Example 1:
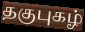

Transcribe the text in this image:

தகுபுகழ்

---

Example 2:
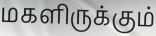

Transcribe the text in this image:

மகளிருக்கும்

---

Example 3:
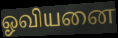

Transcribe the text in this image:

ஓவியனை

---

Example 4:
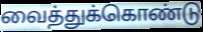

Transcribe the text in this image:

வைத்துக்கொண்டு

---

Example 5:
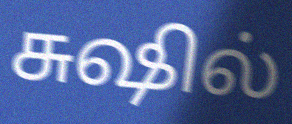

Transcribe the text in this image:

சுஷில்